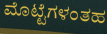
ಮೊಟ್ಟೆಗಳಂತಹ